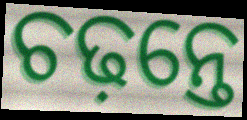
ଚଢ଼ନ୍ତେ